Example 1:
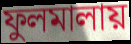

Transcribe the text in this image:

ফুলমালায়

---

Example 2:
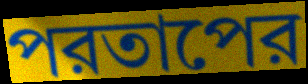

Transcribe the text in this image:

পরতাপের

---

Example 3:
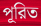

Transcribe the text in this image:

পূরিত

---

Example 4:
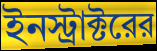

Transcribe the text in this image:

ইনস্ট্রাক্টরের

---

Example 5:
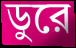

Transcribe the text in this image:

ডুরে